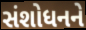
સંશોધનને